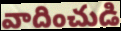
వాదించుడి